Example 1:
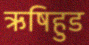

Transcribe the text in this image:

ऋषिहुड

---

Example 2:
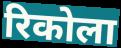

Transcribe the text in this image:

रिकोला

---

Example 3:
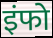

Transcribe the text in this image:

इंफो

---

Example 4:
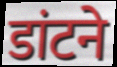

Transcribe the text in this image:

डांटने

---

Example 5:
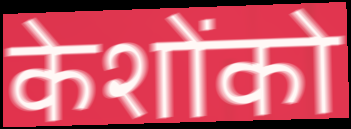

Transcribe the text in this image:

केशोंको